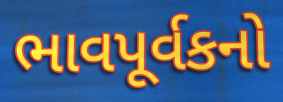
ભાવપૂર્વકનો